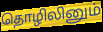
தொழிலினும்